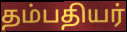
தம்பதியர்